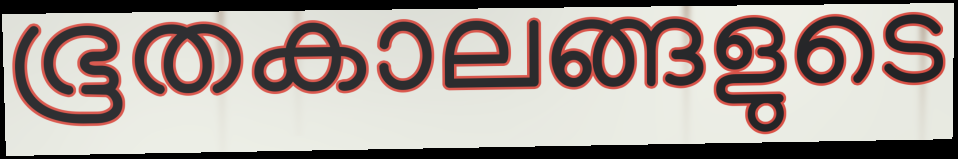
ഭൂതകാലങ്ങളുടെ